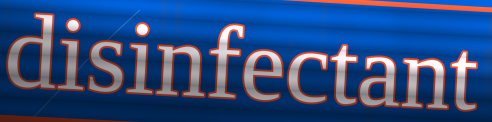
disinfectant